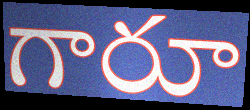
గారూ